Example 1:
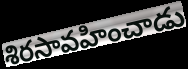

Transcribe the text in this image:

శిరసావహించాడు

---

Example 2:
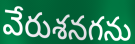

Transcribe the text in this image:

వేరుశనగను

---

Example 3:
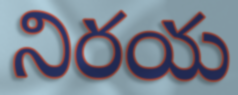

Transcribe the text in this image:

నిరయ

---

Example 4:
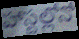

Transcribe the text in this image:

హాస్టల్లోనో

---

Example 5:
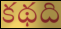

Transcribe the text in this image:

కథది